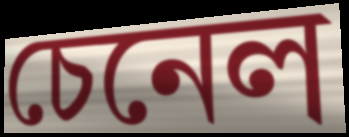
চেনেল